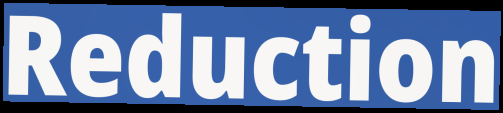
Reduction